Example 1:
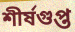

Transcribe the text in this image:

শীর্ষগুপ্ত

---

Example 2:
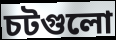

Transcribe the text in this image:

চটগুলো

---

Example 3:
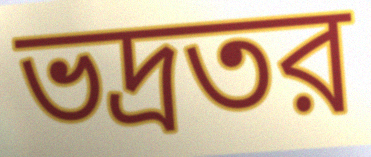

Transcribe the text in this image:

ভদ্রতর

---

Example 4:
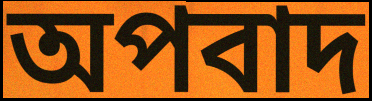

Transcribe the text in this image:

অপবাদ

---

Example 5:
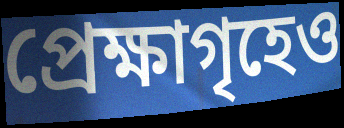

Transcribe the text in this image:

প্রেক্ষাগৃহেও